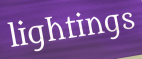
lightings